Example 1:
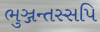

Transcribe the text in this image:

ભુઞ્જન્તસ્સપિ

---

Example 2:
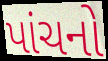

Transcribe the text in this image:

પાંચનો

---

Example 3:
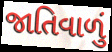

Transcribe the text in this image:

જાતિવાળું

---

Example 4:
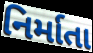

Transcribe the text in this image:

નિર્માતા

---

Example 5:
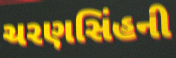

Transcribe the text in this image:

ચરણસિંહની